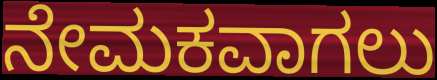
ನೇಮಕವಾಗಲು